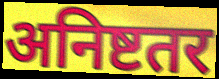
अनिष्टतर